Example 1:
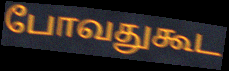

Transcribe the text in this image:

போவதுகூட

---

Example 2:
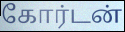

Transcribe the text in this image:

கோர்டன்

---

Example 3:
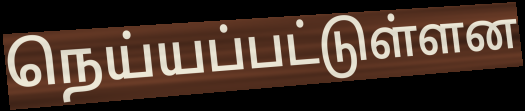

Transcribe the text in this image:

நெய்யப்பட்டுள்ளன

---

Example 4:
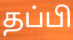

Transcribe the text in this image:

தப்பி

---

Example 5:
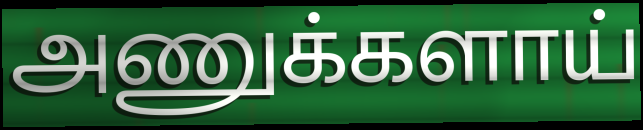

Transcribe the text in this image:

அணுக்களாய்